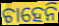
ଚାହେନି